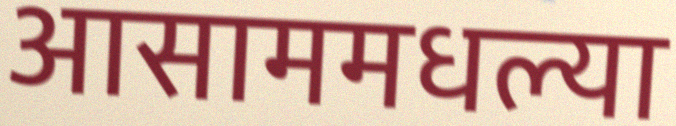
आसाममधल्या